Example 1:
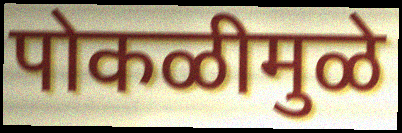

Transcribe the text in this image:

पोकळीमुळे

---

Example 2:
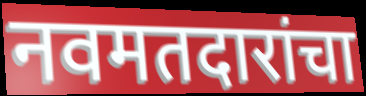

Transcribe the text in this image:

नवमतदारांचा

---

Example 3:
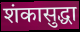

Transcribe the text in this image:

शंकासुद्धा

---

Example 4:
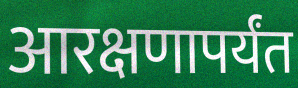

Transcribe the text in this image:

आरक्षणापर्यंत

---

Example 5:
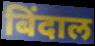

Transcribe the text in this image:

बिंदाल